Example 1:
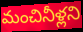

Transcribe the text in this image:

మంచినీళ్లని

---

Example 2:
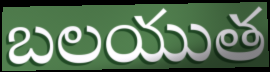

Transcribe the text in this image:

బలయుత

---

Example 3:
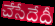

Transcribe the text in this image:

చేసేదేదీ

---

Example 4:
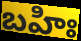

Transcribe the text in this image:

బహిః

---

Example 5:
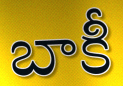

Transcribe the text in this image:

బాకీ